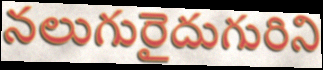
నలుగురైదుగురిని